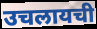
उचलायची